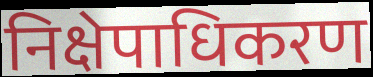
निक्षेपाधिकरण